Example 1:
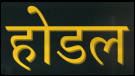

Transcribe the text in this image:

होडल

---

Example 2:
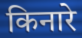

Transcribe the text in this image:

किनारे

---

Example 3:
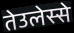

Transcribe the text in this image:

तेउलेस्से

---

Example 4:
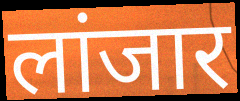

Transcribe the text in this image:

लांजार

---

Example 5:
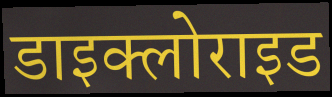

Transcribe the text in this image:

डाइक्लोराइड